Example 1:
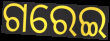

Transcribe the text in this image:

ଗରେଇ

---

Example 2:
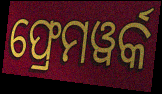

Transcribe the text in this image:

ଫ୍ରେମୱର୍କ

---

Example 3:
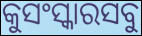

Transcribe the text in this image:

କୁସଂସ୍କାରସବୁ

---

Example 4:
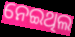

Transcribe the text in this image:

ନେଇଥିଲ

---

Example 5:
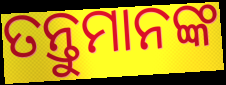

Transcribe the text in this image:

ତନ୍ତୁମାନଙ୍କ